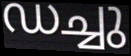
ഡച്ചു